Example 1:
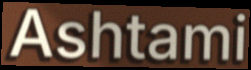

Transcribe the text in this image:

Ashtami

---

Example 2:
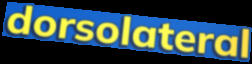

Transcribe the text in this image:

dorsolateral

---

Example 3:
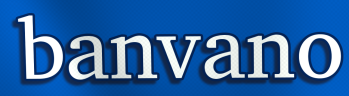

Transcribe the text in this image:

banvano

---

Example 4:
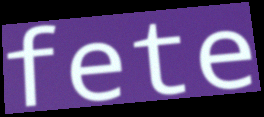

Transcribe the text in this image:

fete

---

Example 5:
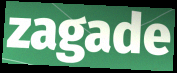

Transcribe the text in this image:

zagade